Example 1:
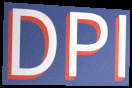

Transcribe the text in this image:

DPI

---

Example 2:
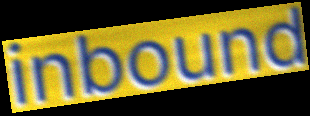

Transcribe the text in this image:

inbound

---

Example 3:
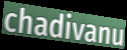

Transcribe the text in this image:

chadivanu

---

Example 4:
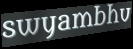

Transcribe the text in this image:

swyambhu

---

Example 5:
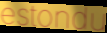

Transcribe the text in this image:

estondu